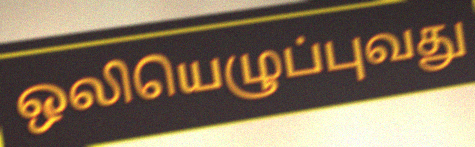
ஒலியெழுப்புவது